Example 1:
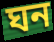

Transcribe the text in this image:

ঘন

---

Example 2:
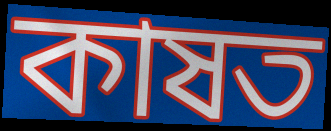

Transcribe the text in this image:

কাষত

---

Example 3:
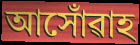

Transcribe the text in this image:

আসোঁৱাহ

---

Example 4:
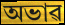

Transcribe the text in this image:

অভাৱ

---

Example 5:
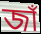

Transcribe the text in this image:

জাঁ